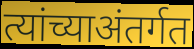
त्यांच्याअंतर्गत